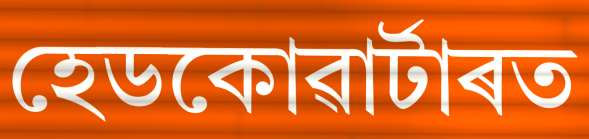
হেডকোৱাৰ্টাৰত